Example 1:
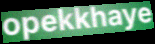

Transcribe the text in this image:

opekkhaye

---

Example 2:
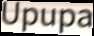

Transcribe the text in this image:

Upupa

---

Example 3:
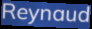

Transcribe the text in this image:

Reynaud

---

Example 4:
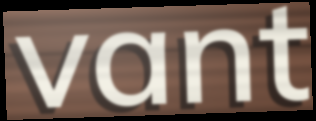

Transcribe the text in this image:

vant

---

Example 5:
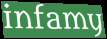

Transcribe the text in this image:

infamy